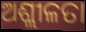
ଅଶ୍ଲୀଳତା